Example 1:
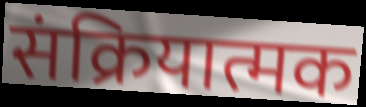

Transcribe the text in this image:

संक्रियात्मक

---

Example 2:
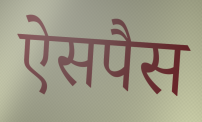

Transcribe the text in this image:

ऐसपैस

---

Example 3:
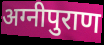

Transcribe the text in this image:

अग्नीपुराण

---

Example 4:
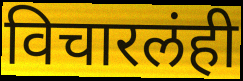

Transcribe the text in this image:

विचारलंही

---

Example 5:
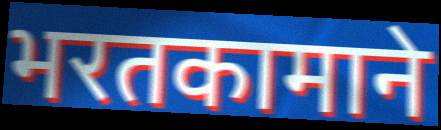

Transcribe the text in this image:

भरतकामाने